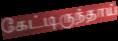
கேட்டிருந்தாய்